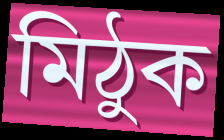
মিঠুক